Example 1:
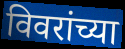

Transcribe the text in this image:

विवरांच्या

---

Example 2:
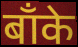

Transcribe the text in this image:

बाँके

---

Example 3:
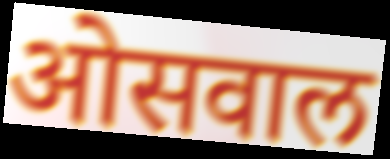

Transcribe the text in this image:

ओसवाल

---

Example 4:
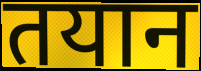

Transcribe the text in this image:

तयान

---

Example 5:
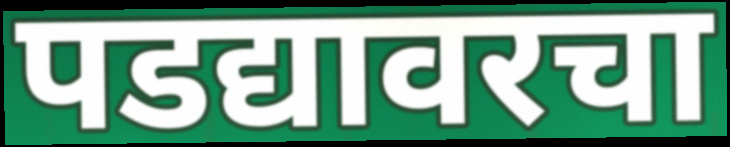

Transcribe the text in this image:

पडद्यावरचा